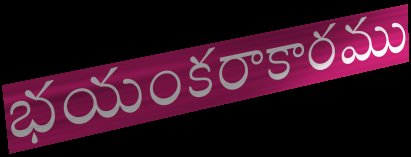
భయంకరాకారము